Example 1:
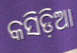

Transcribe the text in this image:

କସିଡ଼ିଆ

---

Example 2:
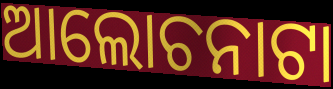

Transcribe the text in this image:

ଆଲୋଚନାଟା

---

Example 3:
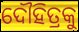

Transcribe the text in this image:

ଦୌହିତ୍ରକୁ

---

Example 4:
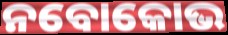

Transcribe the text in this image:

ନବୋକୋଭ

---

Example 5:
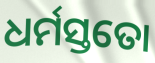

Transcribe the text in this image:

ଧର୍ମସ୍ତତୋ